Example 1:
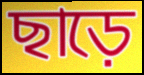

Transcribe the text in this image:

ছাড়ে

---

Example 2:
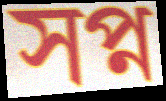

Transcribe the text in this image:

সপ্ন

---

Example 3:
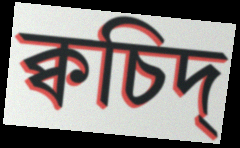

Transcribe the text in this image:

ক্বচিদ্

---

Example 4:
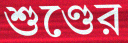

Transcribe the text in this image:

শুণ্ডের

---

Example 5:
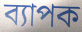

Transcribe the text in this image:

ব্যাপক